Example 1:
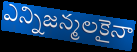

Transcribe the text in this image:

ఎన్నిజన్మలకైనా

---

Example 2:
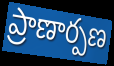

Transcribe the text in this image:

ప్రాణార్పణ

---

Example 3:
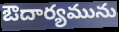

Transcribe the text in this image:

ఔదార్యమును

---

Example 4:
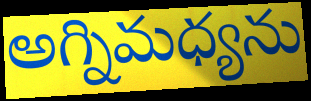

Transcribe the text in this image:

అగ్నిమధ్యను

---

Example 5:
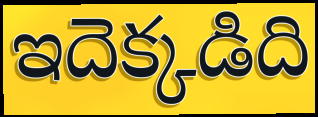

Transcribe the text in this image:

ఇదెక్కడిది